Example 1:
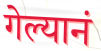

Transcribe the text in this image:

गेल्यानं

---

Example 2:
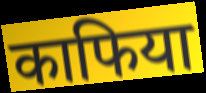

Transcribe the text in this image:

काफिया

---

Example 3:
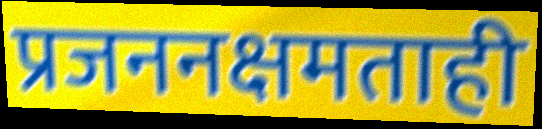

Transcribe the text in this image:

प्रजननक्षमताही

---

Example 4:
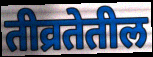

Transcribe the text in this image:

तीव्रतेतील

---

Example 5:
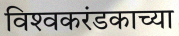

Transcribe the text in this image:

विश्‍वकरंडकाच्या